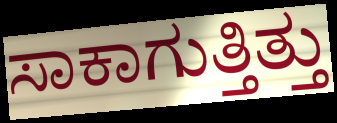
ಸಾಕಾಗುತ್ತಿತ್ತು